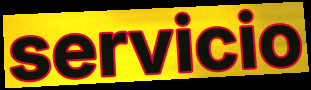
servicio